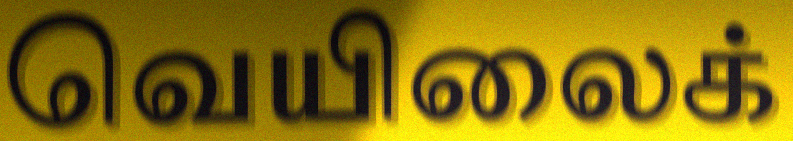
வெயிலைக்